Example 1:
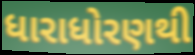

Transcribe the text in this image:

ધારાધોરણથી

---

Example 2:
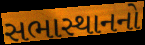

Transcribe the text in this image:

સભાસ્થાનનો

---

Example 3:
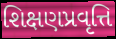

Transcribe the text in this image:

શિક્ષણપ્રવૃત્તિ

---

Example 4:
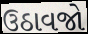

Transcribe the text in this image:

ઉઠાવજો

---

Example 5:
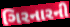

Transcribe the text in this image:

ગિરનારની